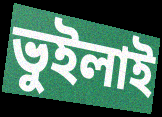
ভুইলাই